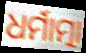
ଧର୍ମାତ୍ମା